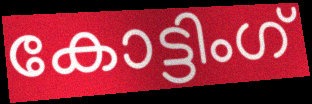
കോട്ടിംഗ്